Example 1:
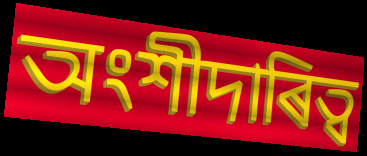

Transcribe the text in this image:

অংশীদাৰিত্ব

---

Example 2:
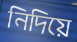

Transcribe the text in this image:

নিদিয়ে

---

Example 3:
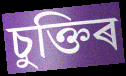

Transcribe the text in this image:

চুক্তিৰ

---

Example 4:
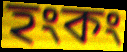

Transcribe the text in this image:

হংকং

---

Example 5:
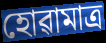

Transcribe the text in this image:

হোৱামাত্ৰ